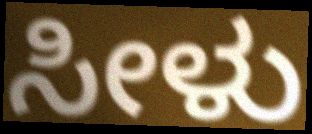
ಸೀಳು